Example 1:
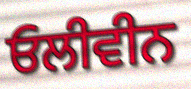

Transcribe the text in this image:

ਓਲੀਵੀਨ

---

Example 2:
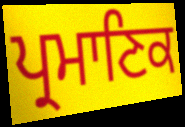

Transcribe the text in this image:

ਪ੍ਰਮਾਣਿਕ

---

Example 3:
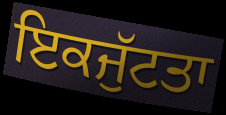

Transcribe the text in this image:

ਇਕਜੁੱਟਤਾ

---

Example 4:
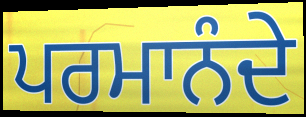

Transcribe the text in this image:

ਪਰਮਾਨੰਦੇ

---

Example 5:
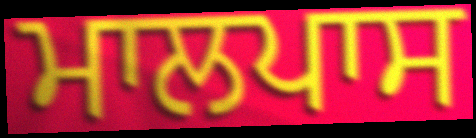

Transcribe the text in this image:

ਮਾਲਪਾਸ